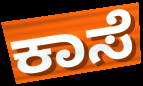
ಕಾಸೆ